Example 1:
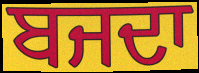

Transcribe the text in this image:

ਬਜਦਾ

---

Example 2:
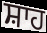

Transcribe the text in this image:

ਸ਼ਾਹ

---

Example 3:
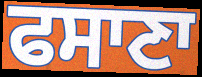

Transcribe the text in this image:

ਫਸਾਣਾ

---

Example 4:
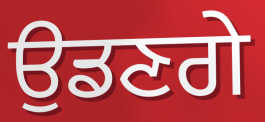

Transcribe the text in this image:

ਉਡਣਗੇ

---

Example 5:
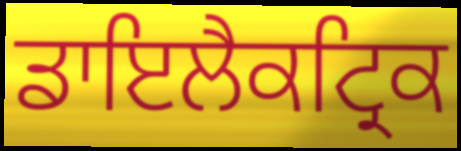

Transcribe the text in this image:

ਡਾਇਲੈਕਟ੍ਰਿਕ